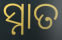
ସ୍ନାତ